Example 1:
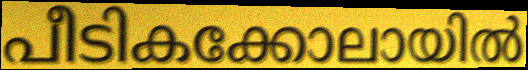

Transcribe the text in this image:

പീടികക്കോലായിൽ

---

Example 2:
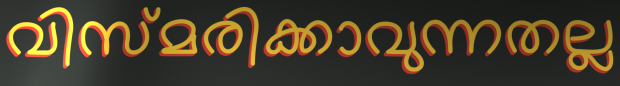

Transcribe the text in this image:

വിസ്മരിക്കാവുന്നതല്ല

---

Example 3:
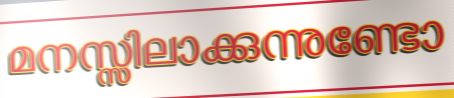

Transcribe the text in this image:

മനസ്സിലാക്കുന്നുണ്ടോ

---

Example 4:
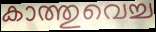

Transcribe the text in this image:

കാത്തുവെച്ച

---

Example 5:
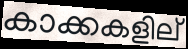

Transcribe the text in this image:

കാക്കകളില്